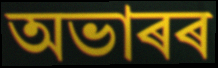
অভাৰৰ